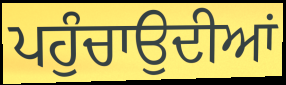
ਪਹੁੰਚਾਉਦੀਆਂ